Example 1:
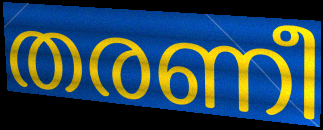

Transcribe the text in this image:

തരണീ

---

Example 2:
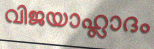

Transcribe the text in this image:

വിജയാഹ്ലാദം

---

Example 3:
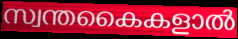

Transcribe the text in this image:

സ്വന്തകൈകളാൽ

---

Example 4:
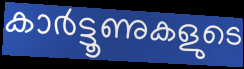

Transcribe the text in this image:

കാർട്ടൂണുകളുടെ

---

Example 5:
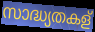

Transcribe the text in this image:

സാദ്ധ്യതകള്